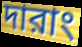
দারাং